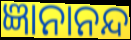
ଜ୍ଞାନାନନ୍ଦ